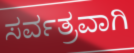
ಸರ್ವತ್ರವಾಗಿ